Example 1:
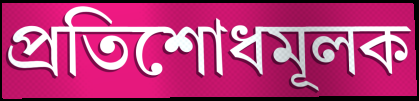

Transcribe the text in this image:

প্রতিশোধমূলক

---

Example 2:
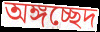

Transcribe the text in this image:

অঙ্গচ্ছেদ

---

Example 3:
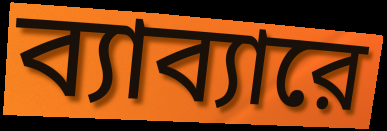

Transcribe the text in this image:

ব্যাব্যারে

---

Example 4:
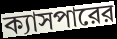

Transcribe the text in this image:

ক্যাসপারের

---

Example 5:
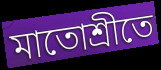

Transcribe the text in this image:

মাতোশ্রীতে